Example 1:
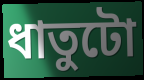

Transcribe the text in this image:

ধাতুটো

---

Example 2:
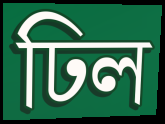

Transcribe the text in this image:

ঢিল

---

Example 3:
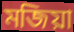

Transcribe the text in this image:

মজিয়া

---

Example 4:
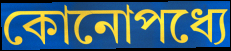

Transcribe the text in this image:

কোনোপধ্যে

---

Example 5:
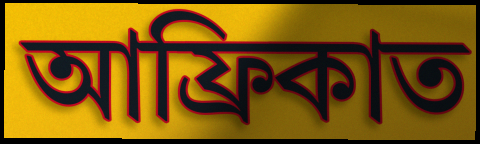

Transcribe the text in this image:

আফ্ৰিকাত